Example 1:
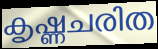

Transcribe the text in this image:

കൃഷ്ണചരിത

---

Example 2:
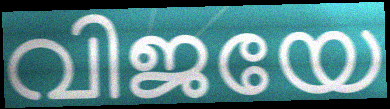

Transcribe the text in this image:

വിജയേ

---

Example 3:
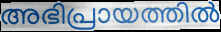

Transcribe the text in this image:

അഭിപ്രായത്തിൽ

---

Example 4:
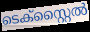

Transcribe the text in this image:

ടെക്സ്റ്റൈൽ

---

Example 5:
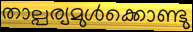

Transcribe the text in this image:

താല്പര്യമുൾക്കൊണ്ടു